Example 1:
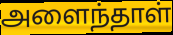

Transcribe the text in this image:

அளைந்தாள்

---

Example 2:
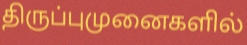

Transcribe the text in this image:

திருப்புமுனைகளில்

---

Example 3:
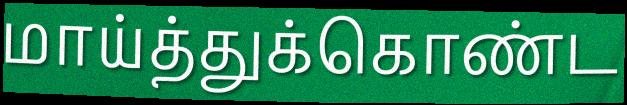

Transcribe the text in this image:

மாய்த்துக்கொண்ட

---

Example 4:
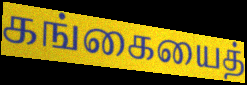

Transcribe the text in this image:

கங்கையைத்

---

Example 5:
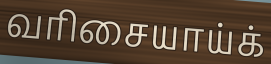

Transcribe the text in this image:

வரிசையாய்க்